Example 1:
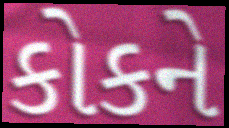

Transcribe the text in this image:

કોકને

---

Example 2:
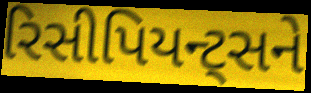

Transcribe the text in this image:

રિસીપિયન્ટ્સને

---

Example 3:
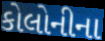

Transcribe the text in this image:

કોલોનીના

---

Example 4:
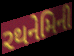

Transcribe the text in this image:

રથનેમિની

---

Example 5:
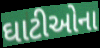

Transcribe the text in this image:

ઘાટીઓના